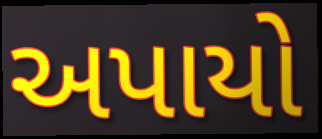
અપાયો